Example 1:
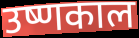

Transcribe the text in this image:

उष्णकाल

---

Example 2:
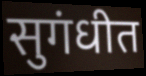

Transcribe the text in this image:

सुगंधीत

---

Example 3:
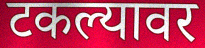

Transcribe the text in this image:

टकल्यावर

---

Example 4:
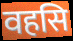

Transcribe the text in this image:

वहसि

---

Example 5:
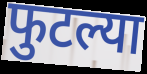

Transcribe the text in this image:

फुटल्या